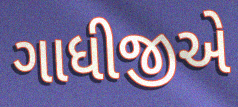
ગાધીજીએ